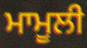
ਮਾਮੂਲੀ